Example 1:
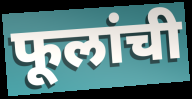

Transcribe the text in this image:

फूलांची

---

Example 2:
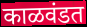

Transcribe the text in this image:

काळवंडत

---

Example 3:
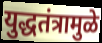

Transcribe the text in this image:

युद्धतंत्रामुळे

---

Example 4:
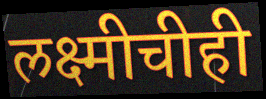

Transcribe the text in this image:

लक्ष्मीचीही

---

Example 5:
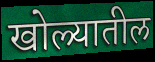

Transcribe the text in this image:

खोल्यातील